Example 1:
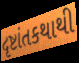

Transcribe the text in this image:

દૃષ્ટાંતકથાથી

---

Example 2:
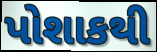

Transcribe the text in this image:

પોશાકથી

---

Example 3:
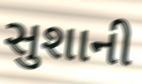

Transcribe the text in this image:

સુશાની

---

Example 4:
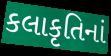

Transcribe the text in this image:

કલાકૃતિનાં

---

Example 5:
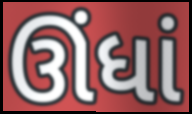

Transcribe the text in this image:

ઊંધાં